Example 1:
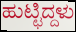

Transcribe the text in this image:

ಹುಟ್ಟಿದ್ದಳು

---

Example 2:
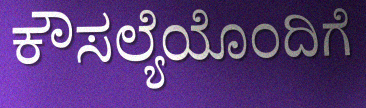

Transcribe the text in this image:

ಕೌಸಲ್ಯೆಯೊಂದಿಗೆ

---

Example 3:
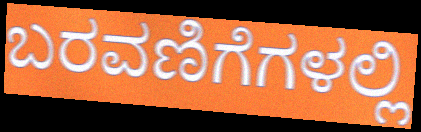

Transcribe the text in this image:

ಬರವಣಿಗೆಗಳಲ್ಲಿ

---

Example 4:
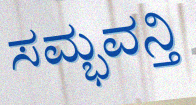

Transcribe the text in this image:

ಸಮ್ಭವನ್ತಿ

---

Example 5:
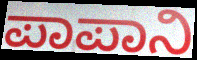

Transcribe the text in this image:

ಪಾಪಾನಿ